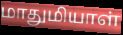
மாதுமியாள்